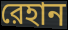
রেহান